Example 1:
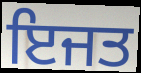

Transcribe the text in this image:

ਇਜਤ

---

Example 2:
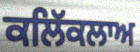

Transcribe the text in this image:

ਕਲਿੱਕਲਾਅ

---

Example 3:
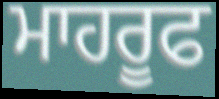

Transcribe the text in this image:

ਮਾਹਰੂਫ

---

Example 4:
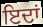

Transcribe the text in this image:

ਇਦਾਂ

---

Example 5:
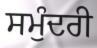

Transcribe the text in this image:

ਸਮੁੰਦਰੀ